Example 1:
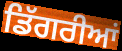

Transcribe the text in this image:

ਡਿੱਗਰੀਆਂ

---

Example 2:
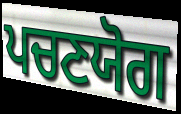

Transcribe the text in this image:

ਪਚਣਯੋਗ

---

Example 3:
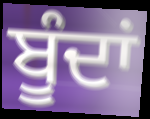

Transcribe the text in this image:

ਬੂੰਦਾਂ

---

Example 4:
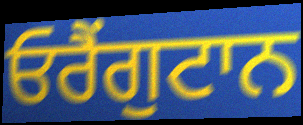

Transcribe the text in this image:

ਓਰੈਂਗੁਟਾਨ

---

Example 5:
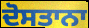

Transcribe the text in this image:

ਦੋਸਤਾਨਾ